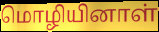
மொழியினாள்